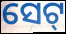
ସେଟ୍